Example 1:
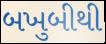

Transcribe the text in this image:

બખુબીથી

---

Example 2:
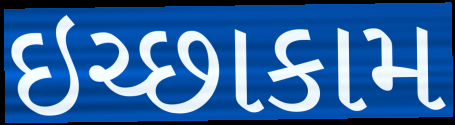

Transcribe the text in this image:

ઇચ્છાકામ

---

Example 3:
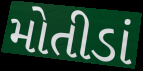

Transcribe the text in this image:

મોતીડાં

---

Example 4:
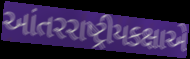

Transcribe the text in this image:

આંતરરાષ્ટ્રીયકક્ષાએ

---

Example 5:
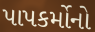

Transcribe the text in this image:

પાપકર્મોનો